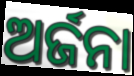
ଅର୍ଜନା